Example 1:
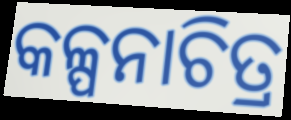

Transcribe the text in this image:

କଳ୍ପନାଚିତ୍ର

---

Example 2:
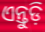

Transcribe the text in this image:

ଏନ୍ତୁଡ଼ି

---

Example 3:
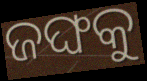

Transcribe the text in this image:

ଜଙ୍ଘକୁ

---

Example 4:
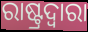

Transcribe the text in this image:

ରାଷ୍ଟ୍ରଦ୍ଵାରା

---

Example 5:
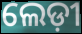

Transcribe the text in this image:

ଲେଡ଼ୀ